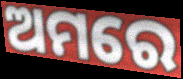
ଅମରେ